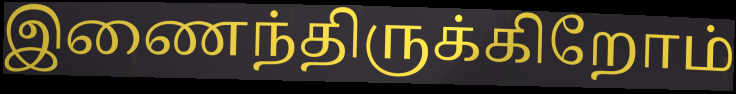
இணைந்திருக்கிறோம்